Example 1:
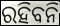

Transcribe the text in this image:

ରହିବନି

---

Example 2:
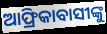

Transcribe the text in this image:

ଆଫ୍ରିକାବାସୀଙ୍କୁ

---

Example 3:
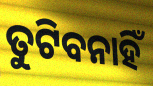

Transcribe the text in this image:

ତୁଟିବନାହିଁ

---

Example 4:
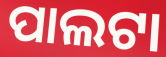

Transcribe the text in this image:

ପାଲଟା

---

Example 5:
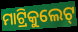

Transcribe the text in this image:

ମାଟ୍ରିକୁଲେଟ୍